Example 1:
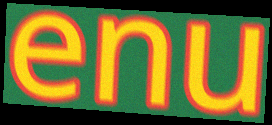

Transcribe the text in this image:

enu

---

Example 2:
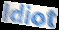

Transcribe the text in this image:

Idiot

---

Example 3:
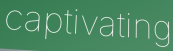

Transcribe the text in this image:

captivating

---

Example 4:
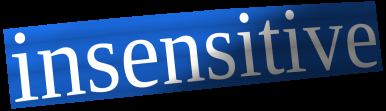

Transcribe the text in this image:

insensitive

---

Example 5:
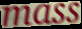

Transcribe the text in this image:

mass